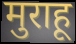
मुराहू